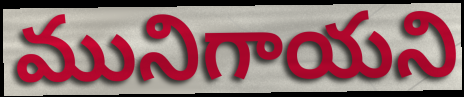
మునిగాయని